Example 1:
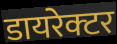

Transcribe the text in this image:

डायरेक्‍टर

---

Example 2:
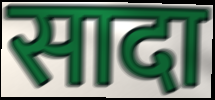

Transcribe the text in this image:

सादा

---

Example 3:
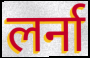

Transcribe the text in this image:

लर्ना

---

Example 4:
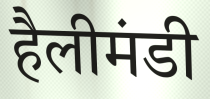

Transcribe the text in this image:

हैलीमंडी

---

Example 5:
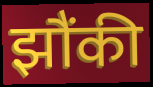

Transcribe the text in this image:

झौंकी